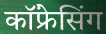
कॉंफ्रेसिंग